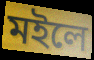
মইলে